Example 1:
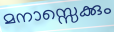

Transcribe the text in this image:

മനാസ്സെക്കും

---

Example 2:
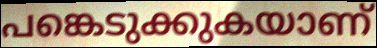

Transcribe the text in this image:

പങ്കെടുക്കുകയാണ്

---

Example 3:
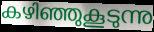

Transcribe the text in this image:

കഴിഞ്ഞുകൂടുന്നു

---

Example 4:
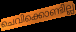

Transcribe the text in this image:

ചെവിക്കൊണ്ടില്ല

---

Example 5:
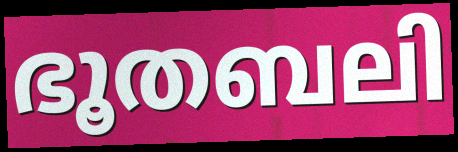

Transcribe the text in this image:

ഭൂതബലി